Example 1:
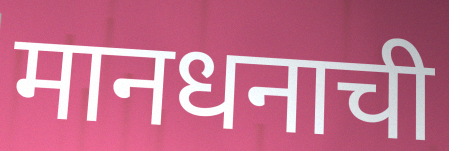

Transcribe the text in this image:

मानधनाची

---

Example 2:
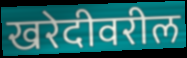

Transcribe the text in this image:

खरेदीवरील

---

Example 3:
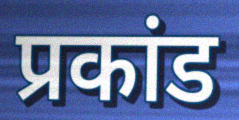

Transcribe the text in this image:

प्रकांड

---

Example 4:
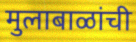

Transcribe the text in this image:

मुलाबाळांची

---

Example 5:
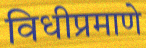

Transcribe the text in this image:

विधीप्रमाणे